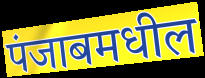
पंजाबमधील